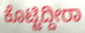
ಕೊಟ್ಟಿದ್ದೀರಾ